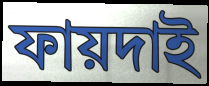
ফায়দাই